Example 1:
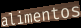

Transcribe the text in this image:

alimentos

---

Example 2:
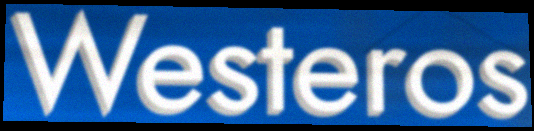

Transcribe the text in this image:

Westeros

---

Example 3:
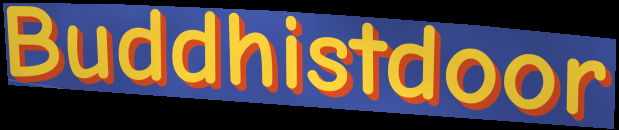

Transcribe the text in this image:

Buddhistdoor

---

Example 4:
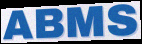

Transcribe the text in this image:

ABMS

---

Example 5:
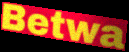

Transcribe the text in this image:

Betwa